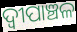
ଦ୍ୱୀପାଞ୍ଚଳ